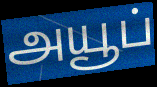
அயூப்